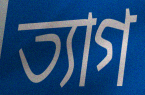
ত্যাগ